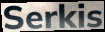
Serkis